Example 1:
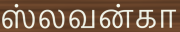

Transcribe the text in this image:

ஸ்லவன்கா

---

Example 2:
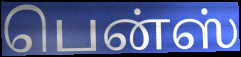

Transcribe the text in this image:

பென்ஸ்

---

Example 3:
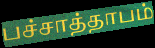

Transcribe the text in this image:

பச்சாத்தாபம்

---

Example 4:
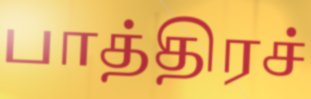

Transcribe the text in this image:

பாத்திரச்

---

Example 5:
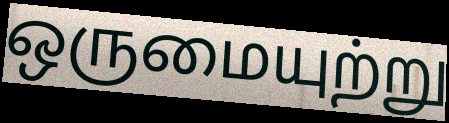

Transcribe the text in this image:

ஒருமையுற்று